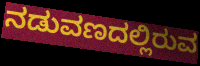
ನಡುವಣದಲ್ಲಿರುವ